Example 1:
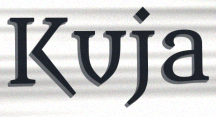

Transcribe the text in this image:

Kuja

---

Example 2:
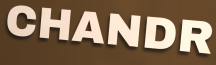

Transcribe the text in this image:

CHANDR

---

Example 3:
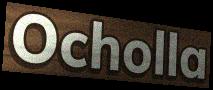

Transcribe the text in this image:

Ocholla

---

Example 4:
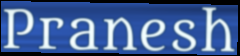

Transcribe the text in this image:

Pranesh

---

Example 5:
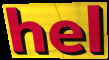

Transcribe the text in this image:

hel